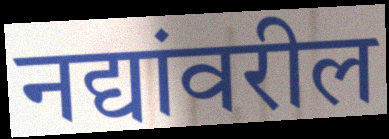
नद्यांवरील